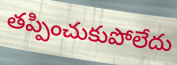
తప్పించుకుపోలేదు